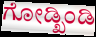
ಗೋಡ್ಖಿಂಡಿ